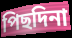
পিছদিনা